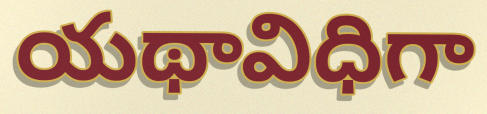
యథావిధిగా